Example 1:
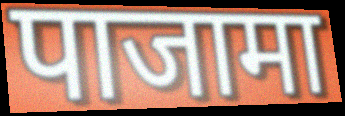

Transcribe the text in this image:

पाजामा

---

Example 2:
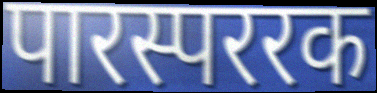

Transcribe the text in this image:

पारस्पररक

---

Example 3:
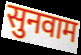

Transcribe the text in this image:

सुनवाम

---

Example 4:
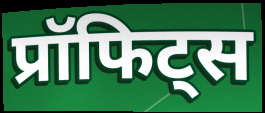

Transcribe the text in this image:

प्रॉफिट्स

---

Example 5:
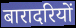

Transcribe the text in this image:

बारादरियों